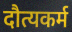
दौत्यकर्म